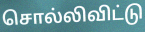
சொல்லிவிட்டு